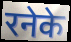
रनेके